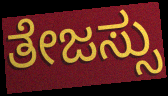
ತೇಜಸ್ಸು